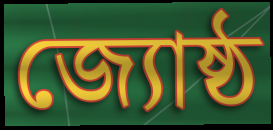
জ্যোষ্ঠ